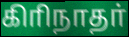
கிரிநாதர்